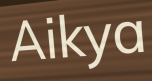
Aikya